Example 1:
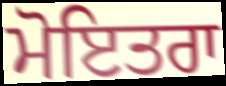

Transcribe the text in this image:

ਮੋਇਤਰਾ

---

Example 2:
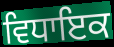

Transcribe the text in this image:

ਵਿਧਾਇਕ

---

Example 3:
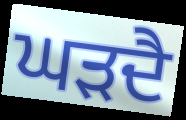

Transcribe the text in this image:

ਘੜਦੈ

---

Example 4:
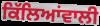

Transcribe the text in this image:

ਕਿੱਲਿਆਂਵਾਲੀ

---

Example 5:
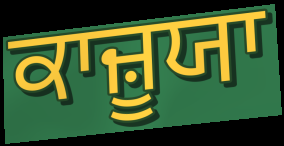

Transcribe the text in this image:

ਕਾਜ਼ੂਯਾ